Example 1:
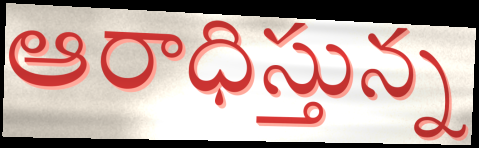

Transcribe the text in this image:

ఆరాధిస్తున్న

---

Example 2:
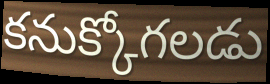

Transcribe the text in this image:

కనుక్కోగలడు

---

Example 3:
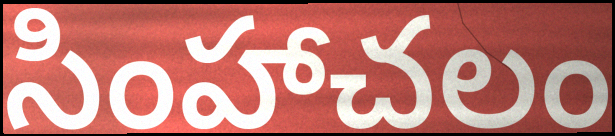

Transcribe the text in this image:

సింహాచలం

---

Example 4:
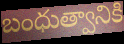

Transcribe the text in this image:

బంధుత్వానికి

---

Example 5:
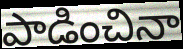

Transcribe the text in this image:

పాడించినా